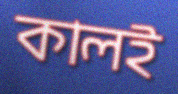
কালই